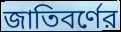
জাতিবর্ণের